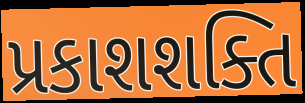
પ્રકાશશક્તિ